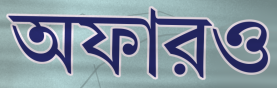
অফারও